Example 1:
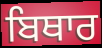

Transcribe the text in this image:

ਬਿਥਾਰ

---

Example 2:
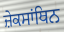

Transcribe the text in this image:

ਜ਼ੇਕਸਾਂਥਿਨ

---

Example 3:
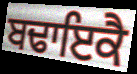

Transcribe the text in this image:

ਬਢਾਇਕੈ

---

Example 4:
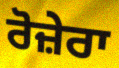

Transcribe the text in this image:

ਰੋਜ਼ੇਰਾ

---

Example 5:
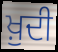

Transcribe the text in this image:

ਖ਼ੁਦੀ